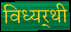
विध्यर्थी